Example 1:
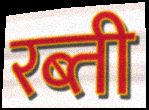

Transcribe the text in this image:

रब्ती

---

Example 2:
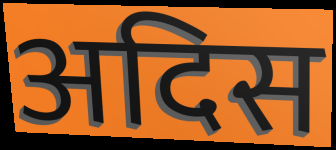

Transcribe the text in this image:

अदिस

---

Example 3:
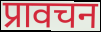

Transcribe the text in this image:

प्रावचन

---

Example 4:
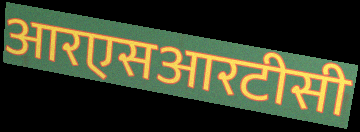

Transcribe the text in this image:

आरएसआरटीसी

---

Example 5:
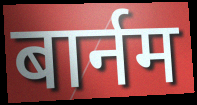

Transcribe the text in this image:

बार्नम